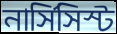
নার্সিসিস্ট